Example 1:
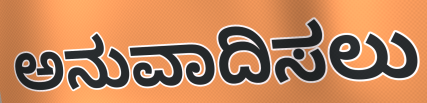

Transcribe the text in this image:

ಅನುವಾದಿಸಲು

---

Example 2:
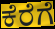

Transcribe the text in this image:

ಕೆರೆಗೆ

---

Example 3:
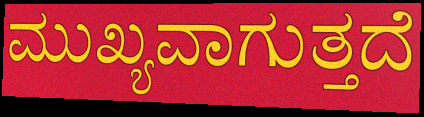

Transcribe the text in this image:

ಮುಖ್ಯವಾಗುತ್ತದೆ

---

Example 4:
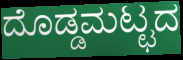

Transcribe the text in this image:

ದೊಡ್ಡಮಟ್ಟದ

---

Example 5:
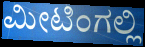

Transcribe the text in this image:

ಮೀಟಿಂಗಲ್ಲಿ